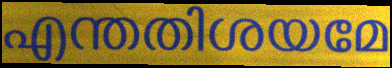
എന്തതിശയമേ